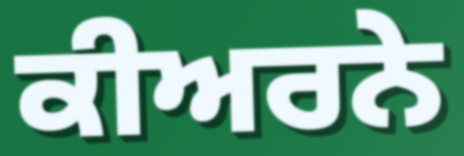
ਕੀਅਰਨੇ